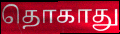
தொகாது